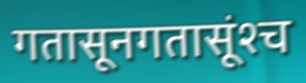
गतासूनगतासूंश्च